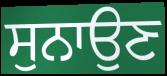
ਸੁਨਾਉਣ